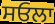
ਸਓਲਾ